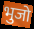
भुजो